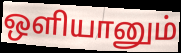
ஒளியானும்